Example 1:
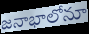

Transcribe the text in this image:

జనాభాలోనూ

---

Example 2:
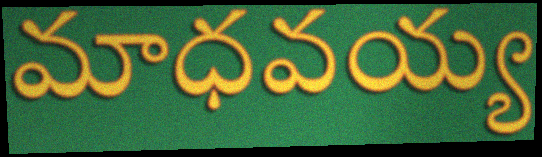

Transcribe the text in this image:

మాధవయ్య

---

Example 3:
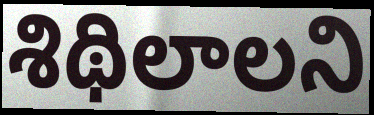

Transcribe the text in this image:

శిథిలాలని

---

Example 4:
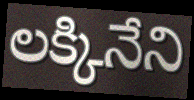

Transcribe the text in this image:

లక్కినేని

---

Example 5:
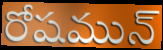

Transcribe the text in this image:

రోషమున్